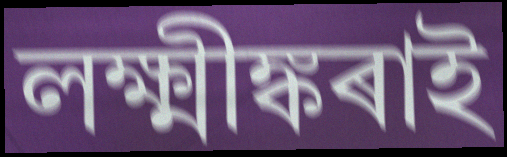
লক্ষ্মীঙ্কৰাই